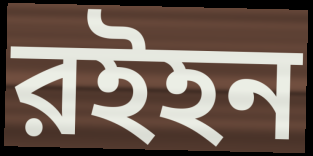
রইহন